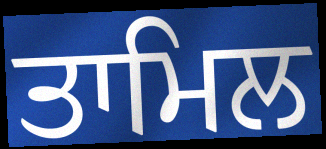
ਤਾਮਿਲ